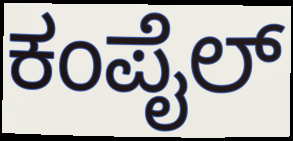
ಕಂಪೈಲ್